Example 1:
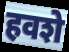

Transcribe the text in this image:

हवशे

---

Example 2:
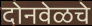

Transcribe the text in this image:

दोनवेळचे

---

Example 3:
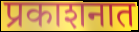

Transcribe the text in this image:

प्रकाशनात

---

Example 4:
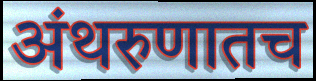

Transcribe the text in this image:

अंथरुणातच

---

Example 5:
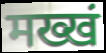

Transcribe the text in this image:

मख्खं